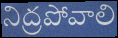
నిద్రపోవాలి